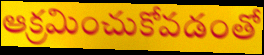
ఆక్రమించుకోవడంతో